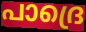
പാദ്രെ